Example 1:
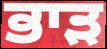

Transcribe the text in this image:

ਭਾੜ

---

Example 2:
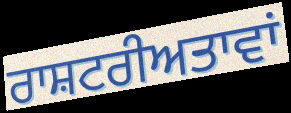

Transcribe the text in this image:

ਰਾਸ਼ਟਰੀਅਤਾਵਾਂ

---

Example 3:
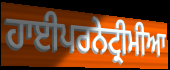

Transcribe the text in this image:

ਹਾਈਪਰਨੇਟ੍ਰੀਮੀਆ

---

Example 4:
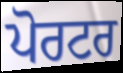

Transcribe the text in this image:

ਪੋਰਟਰ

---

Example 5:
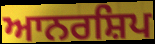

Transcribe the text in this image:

ਆਨਰਸ਼ਿਪ